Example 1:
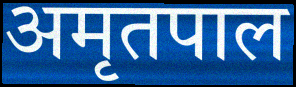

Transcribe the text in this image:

अमृतपाल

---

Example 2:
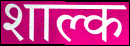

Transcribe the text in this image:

शाल्क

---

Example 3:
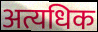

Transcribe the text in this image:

अत्यधिक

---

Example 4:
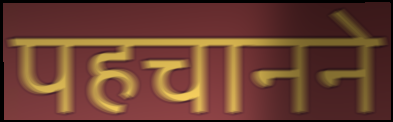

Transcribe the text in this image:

पहचानने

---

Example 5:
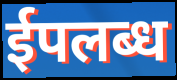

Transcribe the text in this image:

ईपलब्ध